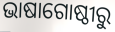
ଭାଷାଗୋଷ୍ଠୀରୁ